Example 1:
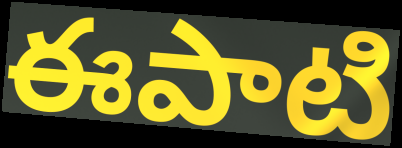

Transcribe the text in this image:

ఈపాటి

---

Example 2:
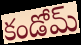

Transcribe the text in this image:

కండోమ్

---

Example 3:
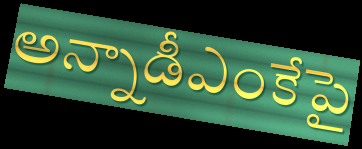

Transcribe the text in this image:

అన్నాడీఎంకేపై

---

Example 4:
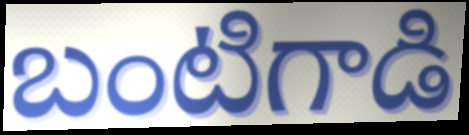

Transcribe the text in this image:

బంటిగాడి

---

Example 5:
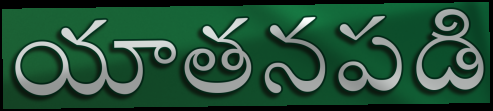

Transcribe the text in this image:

యాతనపడి